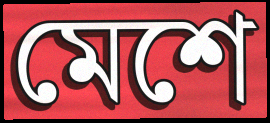
মেশে